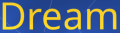
Dream